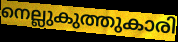
നെല്ലുകുത്തുകാരി